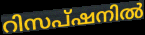
റിസപ്ഷനിൽ